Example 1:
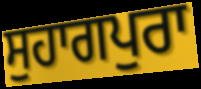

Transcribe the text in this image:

ਸੁਹਾਗਪੁਰਾ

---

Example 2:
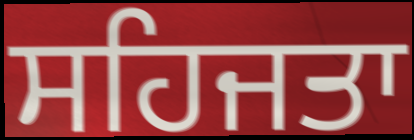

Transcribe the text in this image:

ਸਹਿਜਤਾ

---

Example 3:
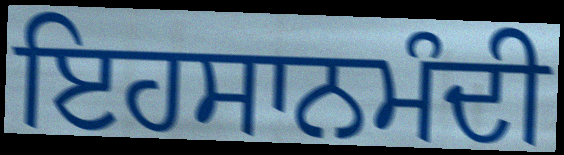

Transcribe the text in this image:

ਇਹਸਾਨਮੰਦੀ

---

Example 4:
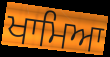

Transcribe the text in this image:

ਖਾਮਿਆ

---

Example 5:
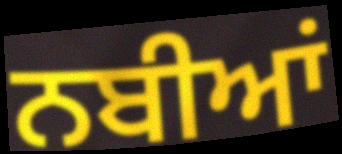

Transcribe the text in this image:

ਨਬੀਆਂ